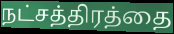
நட்சத்திரத்தை